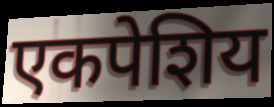
एकपेशिय